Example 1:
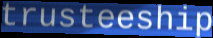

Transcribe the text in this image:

trusteeship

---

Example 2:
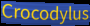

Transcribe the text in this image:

Crocodylus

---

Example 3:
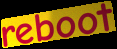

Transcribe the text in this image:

reboot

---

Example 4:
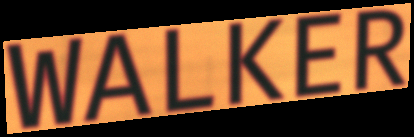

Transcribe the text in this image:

WALKER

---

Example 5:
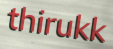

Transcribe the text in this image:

thirukk